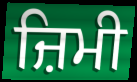
ਜ਼ਿਮੀ